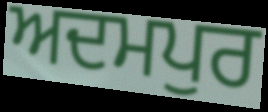
ਅਦਮਪੁਰ